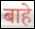
बाहे